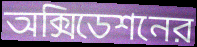
অক্সিডেশনের